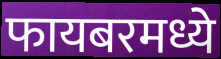
फायबरमध्ये